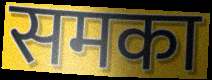
समका